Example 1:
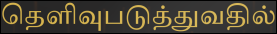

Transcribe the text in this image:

தெளிவுபடுத்துவதில்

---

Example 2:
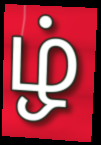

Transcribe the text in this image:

ழ்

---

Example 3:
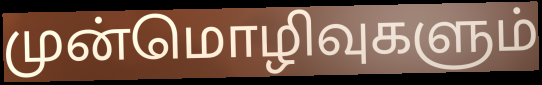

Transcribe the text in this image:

முன்மொழிவுகளும்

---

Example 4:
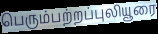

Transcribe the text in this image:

பெரும்பற்றப்புலியூரை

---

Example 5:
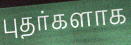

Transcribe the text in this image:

புதர்களாக